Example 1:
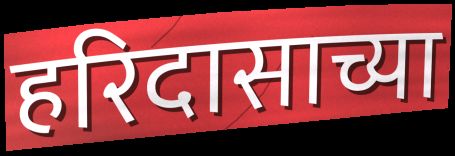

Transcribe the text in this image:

हरिदासाच्या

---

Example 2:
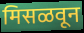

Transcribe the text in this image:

मिसळवून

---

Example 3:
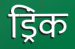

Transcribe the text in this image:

ड्रिंक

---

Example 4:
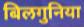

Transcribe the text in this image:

बिलगुनिया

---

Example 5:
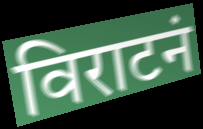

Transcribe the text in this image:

विराटनं